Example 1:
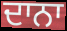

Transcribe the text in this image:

ਦਾਨਾ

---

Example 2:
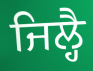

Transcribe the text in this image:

ਜਿਲ੍ਹੈ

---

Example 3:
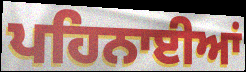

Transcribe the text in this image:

ਪਹਿਨਾਈਆਂ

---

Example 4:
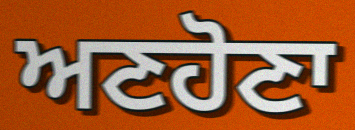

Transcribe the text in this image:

ਅਣਹੋਣਾ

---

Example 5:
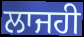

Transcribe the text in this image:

ਲਾਜਹੀ